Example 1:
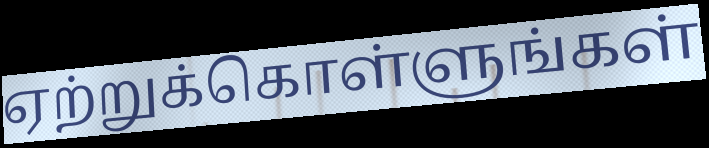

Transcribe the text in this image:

ஏற்றுக்கொள்ளுங்கள்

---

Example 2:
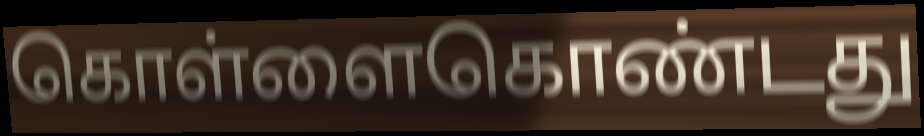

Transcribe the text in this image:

கொள்ளைகொண்டது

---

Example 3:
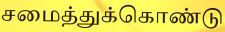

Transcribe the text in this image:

சமைத்துக்கொண்டு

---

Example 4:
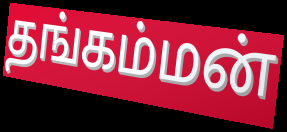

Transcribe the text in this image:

தங்கம்மன்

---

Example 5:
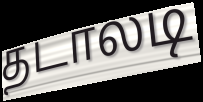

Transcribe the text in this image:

தடாலடி